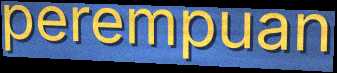
perempuan